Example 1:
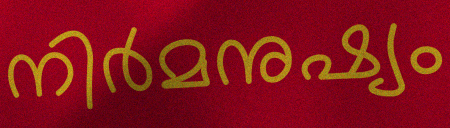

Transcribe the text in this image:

നിർമനുഷ്യം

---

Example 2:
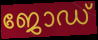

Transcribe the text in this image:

ജോഡ്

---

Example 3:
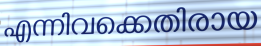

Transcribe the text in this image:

എന്നിവക്കെതിരായ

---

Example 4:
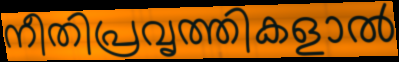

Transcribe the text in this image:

നീതിപ്രവൃത്തികളാൽ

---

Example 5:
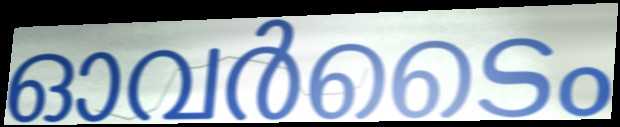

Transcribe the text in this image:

ഓവർടൈം